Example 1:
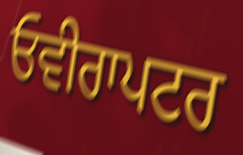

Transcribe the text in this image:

ਓਵੀਰਾਪਟਰ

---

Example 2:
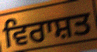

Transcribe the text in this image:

ਵਿਰਾਸ਼ਤ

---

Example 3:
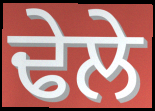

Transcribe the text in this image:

ਢੇਲੇ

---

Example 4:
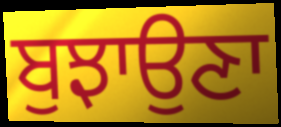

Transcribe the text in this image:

ਬੁਝਾਉਣਾ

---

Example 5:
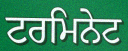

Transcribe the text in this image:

ਟਰਮਿਨੇਟ